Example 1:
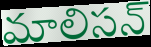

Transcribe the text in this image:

మాలిసన్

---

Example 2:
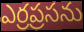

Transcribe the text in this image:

ఎర్రప్రసను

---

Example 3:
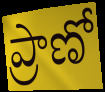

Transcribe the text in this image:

ప్రాణో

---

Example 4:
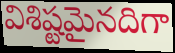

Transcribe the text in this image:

విశిష్టమైనదిగా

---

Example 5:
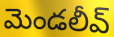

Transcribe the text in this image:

మెండలీవ్